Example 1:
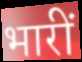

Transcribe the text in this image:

भारीं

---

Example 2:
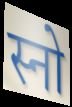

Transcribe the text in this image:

स्नो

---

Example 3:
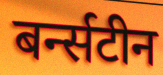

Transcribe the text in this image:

बर्न्सटीन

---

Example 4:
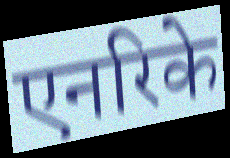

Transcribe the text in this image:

एनरिके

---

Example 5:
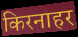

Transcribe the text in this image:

किरनाहर